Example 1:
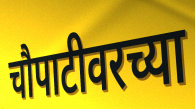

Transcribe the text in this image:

चौपाटीवरच्या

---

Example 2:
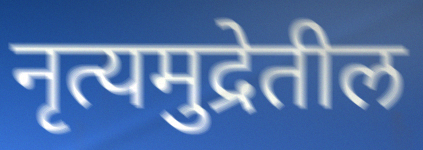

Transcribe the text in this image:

नृत्यमुद्रेतील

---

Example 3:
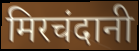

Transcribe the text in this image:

मिरचंदानी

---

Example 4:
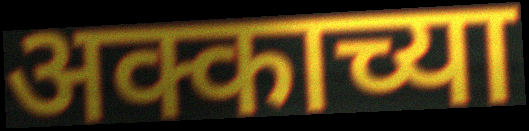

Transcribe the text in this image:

अक्काच्या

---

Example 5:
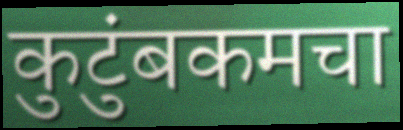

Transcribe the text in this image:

कुटुंबकमचा